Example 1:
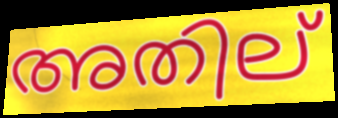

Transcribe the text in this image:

അതില്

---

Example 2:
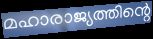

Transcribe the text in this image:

മഹാരാജ്യത്തിന്റെ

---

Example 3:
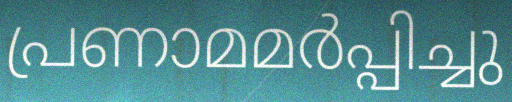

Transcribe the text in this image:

പ്രണാമമർപ്പിച്ചു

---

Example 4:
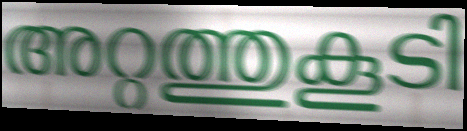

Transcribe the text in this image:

അറ്റത്തുകൂടി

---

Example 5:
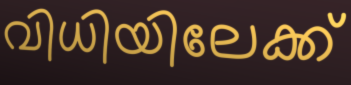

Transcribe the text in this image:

വിധിയിലേക്ക്